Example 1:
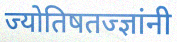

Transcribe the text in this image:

ज्योतिषतज्ज्ञांनी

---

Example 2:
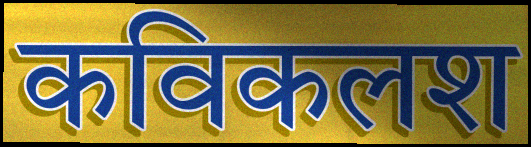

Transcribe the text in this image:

कविकलश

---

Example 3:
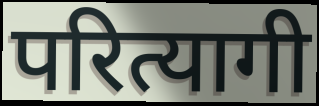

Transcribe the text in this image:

परित्यागी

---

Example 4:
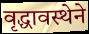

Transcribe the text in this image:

वृद्धावस्थेने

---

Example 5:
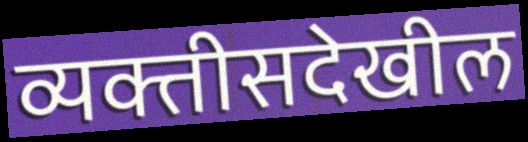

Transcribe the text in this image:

व्यक्तीसदेखील